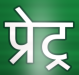
प्रेट्र